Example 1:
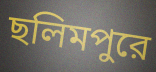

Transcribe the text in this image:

ছলিমপুরে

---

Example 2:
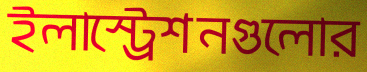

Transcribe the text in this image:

ইলাস্ট্রেশনগুলোর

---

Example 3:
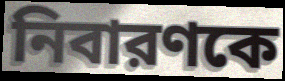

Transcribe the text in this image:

নিবারণকে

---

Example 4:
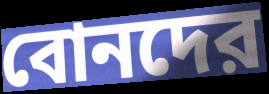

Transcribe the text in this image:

বোনদের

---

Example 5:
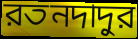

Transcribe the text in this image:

রতনদাদুর